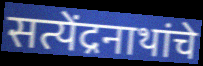
सत्येंद्रनाथांचे